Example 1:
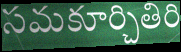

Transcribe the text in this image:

సమకూర్చితిరి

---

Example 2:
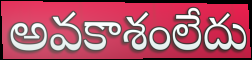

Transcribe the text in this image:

అవకాశంలేదు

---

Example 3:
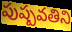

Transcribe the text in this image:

పుష్పవతిని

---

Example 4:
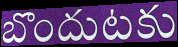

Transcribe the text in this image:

బొందుటకు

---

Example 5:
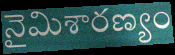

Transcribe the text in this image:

నైమిశారణ్యం